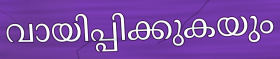
വായിപ്പിക്കുകയും